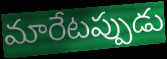
మారేటప్పుడు